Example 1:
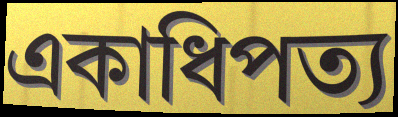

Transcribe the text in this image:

একাধিপত্য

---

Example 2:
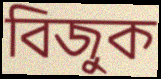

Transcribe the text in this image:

বিজুক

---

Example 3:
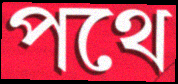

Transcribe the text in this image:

পথে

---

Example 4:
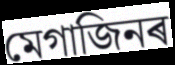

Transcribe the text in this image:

মেগাজিনৰ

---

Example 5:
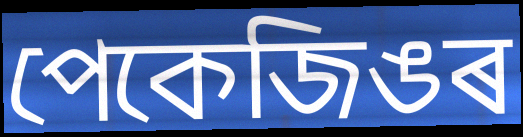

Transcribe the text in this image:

পেকেজিঙৰ